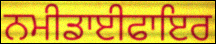
ਨਮੀਡਾਈਫਾਇਰ